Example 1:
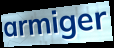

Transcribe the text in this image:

armiger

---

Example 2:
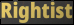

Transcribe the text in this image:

Rightist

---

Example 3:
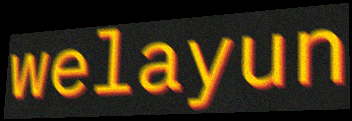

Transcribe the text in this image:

welayun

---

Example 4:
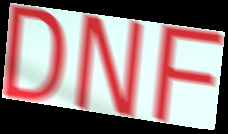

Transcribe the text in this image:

DNF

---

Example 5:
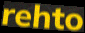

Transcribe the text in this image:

rehto